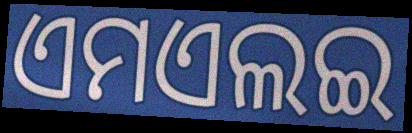
ଏମଏଲଇ